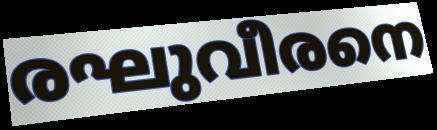
രഘുവീരനെ